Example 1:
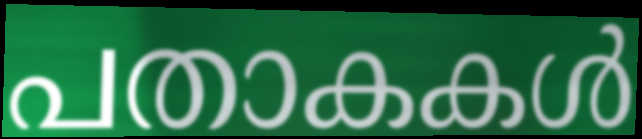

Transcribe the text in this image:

പതാകകൾ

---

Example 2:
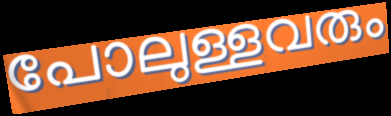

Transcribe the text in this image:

പോലുള്ളവരും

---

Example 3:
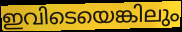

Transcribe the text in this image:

ഇവിടെയെങ്കിലും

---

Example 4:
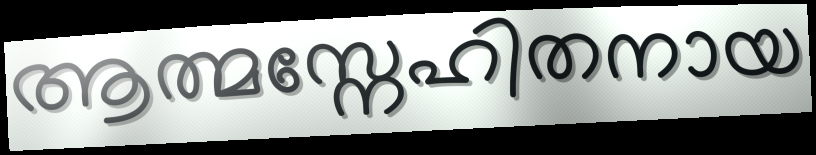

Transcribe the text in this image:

ആത്മസ്നേഹിതനായ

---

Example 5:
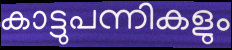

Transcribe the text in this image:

കാട്ടുപന്നികളും